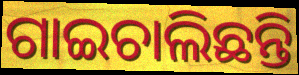
ଗାଇଚାଲିଛନ୍ତି